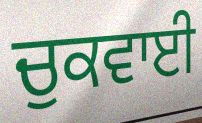
ਚੁਕਵਾਈ